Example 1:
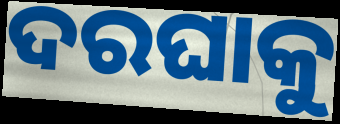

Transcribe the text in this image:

ଦରଘାକୁ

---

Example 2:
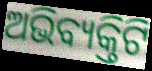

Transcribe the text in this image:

ଅଭିବ୍ୟକ୍ତିଟି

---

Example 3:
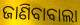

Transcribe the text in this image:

ଜାଣିବାବାଲା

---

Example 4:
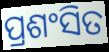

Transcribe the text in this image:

ପ୍ରଶଂସିତ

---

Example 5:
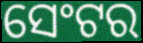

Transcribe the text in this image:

ସେଂଟର